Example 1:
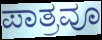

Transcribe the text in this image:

ಪಾತ್ರವೂ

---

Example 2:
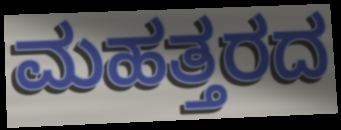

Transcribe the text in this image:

ಮಹತ್ತರದ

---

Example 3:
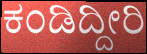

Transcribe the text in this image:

ಕಂಡಿದ್ದೀರಿ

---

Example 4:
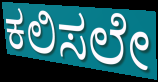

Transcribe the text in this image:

ಕಲಿಸಲೇ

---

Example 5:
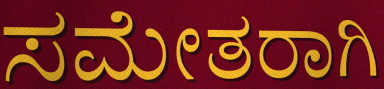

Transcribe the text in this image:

ಸಮೇತರಾಗಿ